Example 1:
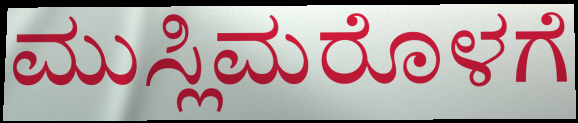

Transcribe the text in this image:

ಮುಸ್ಲಿಮರೊಳಗೆ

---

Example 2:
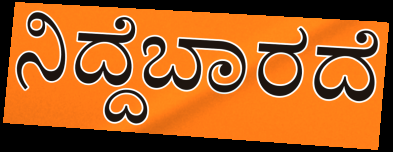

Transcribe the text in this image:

ನಿದ್ದೆಬಾರದೆ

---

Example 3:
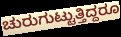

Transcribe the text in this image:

ಚುರುಗುಟ್ಟುತ್ತಿದ್ದರೂ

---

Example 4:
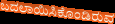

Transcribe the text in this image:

ಬದಲಾಯಿಸಿಕೊಂಡಿರುವ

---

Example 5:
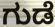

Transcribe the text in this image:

ಗುಡೆ